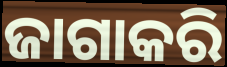
ଜାଗାକରି